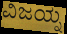
ವಿಜಯ್ನ